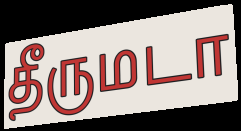
தீருமடா